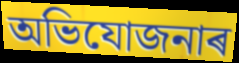
অভিযোজনাৰ